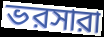
ভরসারা